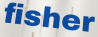
fisher